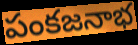
పంకజనాభ